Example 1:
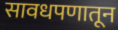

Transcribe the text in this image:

सावधपणातून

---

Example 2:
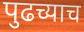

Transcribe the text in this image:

पुढच्याच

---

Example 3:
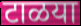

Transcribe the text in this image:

टाळया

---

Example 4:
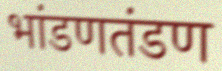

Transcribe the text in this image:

भांडणतंडण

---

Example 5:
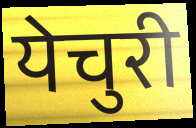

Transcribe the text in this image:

येचुरी